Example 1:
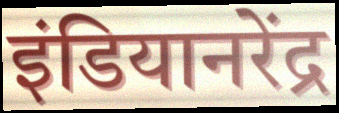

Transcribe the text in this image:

इंडियानरेंद्र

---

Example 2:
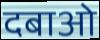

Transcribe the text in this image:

दबाओ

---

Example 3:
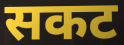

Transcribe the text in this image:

सकट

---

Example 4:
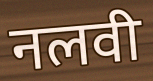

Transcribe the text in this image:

नलवी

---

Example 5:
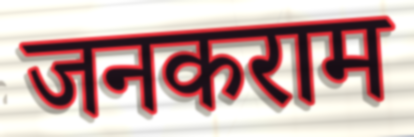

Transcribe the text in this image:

जनकराम